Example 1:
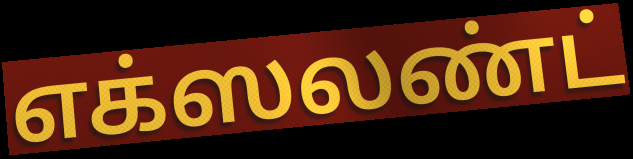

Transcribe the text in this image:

எக்ஸலண்ட்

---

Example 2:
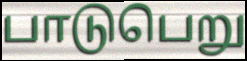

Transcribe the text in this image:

பாடுபெறு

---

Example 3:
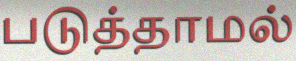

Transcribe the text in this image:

படுத்தாமல்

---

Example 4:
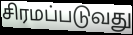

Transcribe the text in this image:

சிரமப்படுவது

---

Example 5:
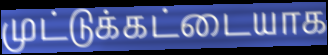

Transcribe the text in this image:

முட்டுக்கட்டையாக